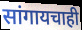
सांगायचाही